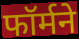
फॉर्मने